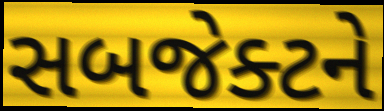
સબજેક્ટને